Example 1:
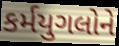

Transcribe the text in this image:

કર્મયુગલોને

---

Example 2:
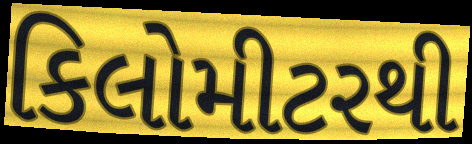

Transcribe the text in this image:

કિલોમીટરથી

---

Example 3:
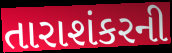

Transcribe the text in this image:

તારાશંકરની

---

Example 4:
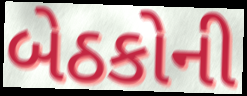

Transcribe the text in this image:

બેઠકોની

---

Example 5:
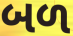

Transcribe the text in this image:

બળ